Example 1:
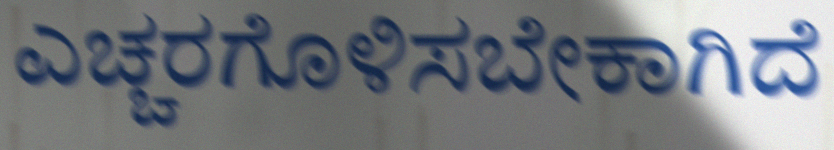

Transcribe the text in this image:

ಎಚ್ಚರಗೊಳಿಸಬೇಕಾಗಿದೆ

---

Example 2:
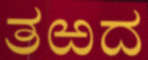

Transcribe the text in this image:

ತಱದ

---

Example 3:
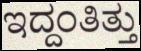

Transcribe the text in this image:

ಇದ್ದಂತಿತ್ತು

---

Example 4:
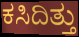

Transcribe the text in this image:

ಕಸಿದಿತ್ತು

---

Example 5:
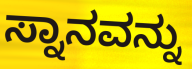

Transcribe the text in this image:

ಸ್ನಾನವನ್ನು